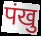
पंखु